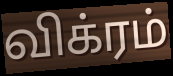
விக்ரம்